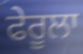
ਫੇਰੂਲਾ